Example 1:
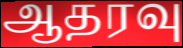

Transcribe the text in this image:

ஆதரவு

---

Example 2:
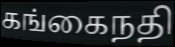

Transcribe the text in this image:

கங்கைநதி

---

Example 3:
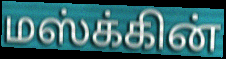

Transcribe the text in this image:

மஸ்க்கின்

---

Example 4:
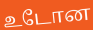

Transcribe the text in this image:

உடோன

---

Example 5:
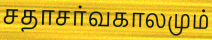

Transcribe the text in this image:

சதாசர்வகாலமும்